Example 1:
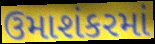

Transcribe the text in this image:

ઉમાશંકરમાં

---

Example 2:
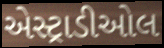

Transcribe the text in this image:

એસ્ટ્રાડીઓલ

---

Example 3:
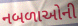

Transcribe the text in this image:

નબળાઓની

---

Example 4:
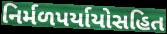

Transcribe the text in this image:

નિર્મળપર્યાયોસહિત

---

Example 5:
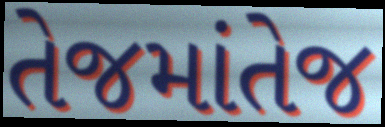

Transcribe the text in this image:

તેજમાંતેજ